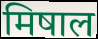
मिषाल